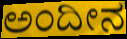
ಅಂದೀನ